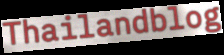
Thailandblog